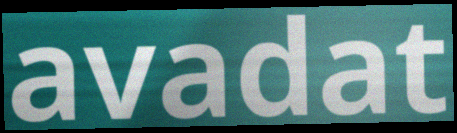
avadat